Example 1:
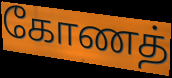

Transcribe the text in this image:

கோணத்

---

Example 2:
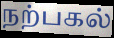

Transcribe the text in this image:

நற்பகல்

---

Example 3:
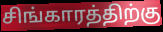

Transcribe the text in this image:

சிங்காரத்திற்கு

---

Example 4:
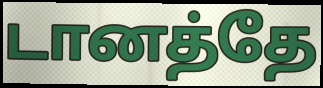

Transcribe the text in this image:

டானத்தே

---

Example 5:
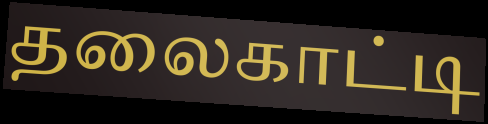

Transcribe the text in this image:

தலைகாட்டி